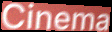
Cinema